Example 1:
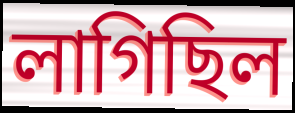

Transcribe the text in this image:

লাগিছিল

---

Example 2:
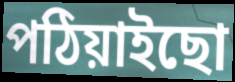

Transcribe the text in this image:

পঠিয়াইছো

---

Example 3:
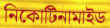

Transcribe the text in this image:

নিকোটিনামাইড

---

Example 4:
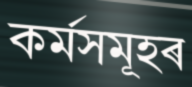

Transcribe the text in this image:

কৰ্মসমূহৰ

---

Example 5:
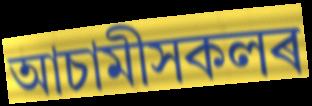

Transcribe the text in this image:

আচামীসকলৰ